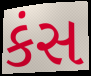
કંસ